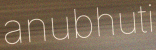
anubhuti